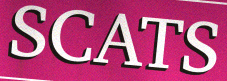
SCATS